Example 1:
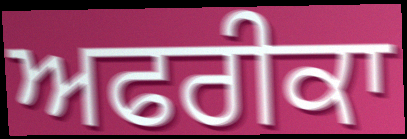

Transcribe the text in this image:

ਅਫਰੀਕਾ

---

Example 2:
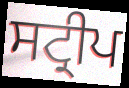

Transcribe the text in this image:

ਸਟ੍ਰੀਪ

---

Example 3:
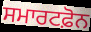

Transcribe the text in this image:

ਸਮਾਰਟਫ਼ੋਨ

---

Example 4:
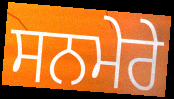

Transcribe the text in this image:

ਸਨਮੇਰੇ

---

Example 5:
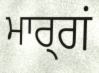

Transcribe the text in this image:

ਮਾਰ੍ਗਂ